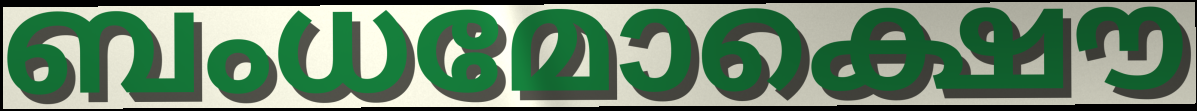
ബംധമോക്ഷൌ